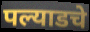
पल्याडचे